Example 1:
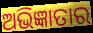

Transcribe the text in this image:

ଅଭିଜ୍ଞାତାର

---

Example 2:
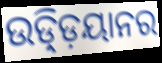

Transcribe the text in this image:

ଉଡ଼୍ଡ଼ିୟାନର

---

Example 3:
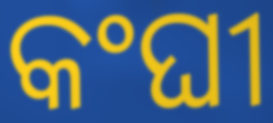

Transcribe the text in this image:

କଂଘୀ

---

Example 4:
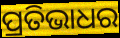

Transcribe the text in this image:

ପ୍ରତିଭାଧର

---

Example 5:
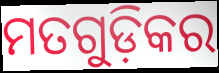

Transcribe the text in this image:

ମତଗୁଡ଼ିକର